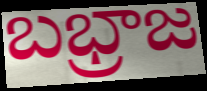
బభ్రాజ